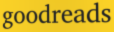
goodreads